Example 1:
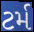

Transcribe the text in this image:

ટર્મ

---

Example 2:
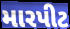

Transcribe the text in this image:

મારપીટ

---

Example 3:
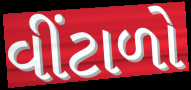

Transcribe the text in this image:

વીંટાળો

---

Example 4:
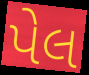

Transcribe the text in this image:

પેલ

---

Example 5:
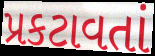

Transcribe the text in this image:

પ્રકટાવતાં